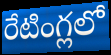
రేటింగ్లలో